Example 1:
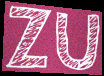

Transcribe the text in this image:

ZU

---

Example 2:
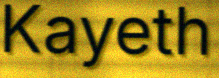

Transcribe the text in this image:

Kayeth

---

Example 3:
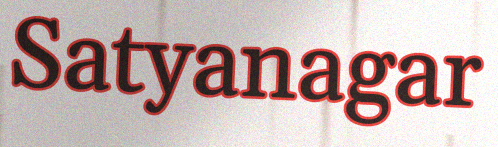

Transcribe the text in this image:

Satyanagar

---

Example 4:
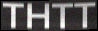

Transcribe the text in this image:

THTT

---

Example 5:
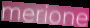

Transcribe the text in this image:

merione